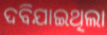
ଦବିଯାଇଥିଲା